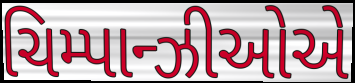
ચિમ્પાન્ઝીઓએ